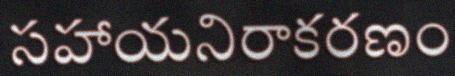
సహాయనిరాకరణం